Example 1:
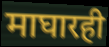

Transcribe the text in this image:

माघारही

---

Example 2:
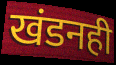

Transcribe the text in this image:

खंडनही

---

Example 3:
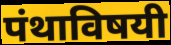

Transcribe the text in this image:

पंथाविषयी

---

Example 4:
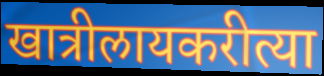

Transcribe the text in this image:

खात्रीलायकरीत्या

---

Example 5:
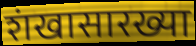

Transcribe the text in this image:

शंखासारख्या